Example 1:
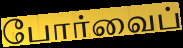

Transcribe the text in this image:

போர்வைப்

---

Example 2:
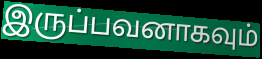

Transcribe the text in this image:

இருப்பவனாகவும்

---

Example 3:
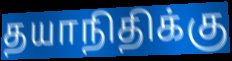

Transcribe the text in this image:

தயாநிதிக்கு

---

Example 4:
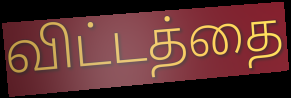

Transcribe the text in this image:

விட்டத்தை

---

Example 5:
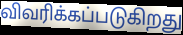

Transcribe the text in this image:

விவரிக்கப்படுகிறது